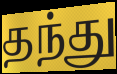
தந்து